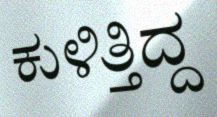
ಕುಳಿತ್ತಿದ್ದ